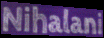
Nihalani